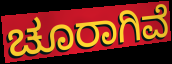
ಚೂರಾಗಿವೆ